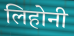
लिहोनी